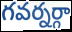
గవర్నర్గా